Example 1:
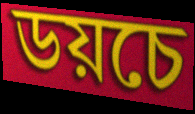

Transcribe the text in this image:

ডয়চে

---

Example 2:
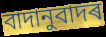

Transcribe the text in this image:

বাদানুবাদৰ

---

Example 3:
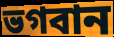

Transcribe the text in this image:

ভগবান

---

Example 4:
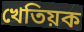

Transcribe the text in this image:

খেতিয়ক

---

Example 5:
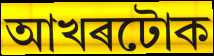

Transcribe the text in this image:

আখৰটোক